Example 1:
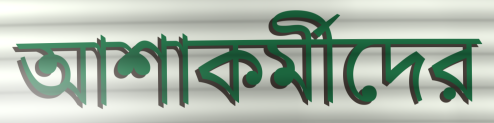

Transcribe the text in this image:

আশাকর্মীদের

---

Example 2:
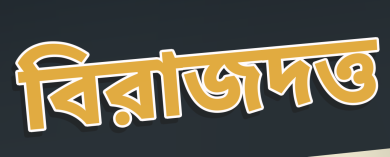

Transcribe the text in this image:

বিরাজদত্ত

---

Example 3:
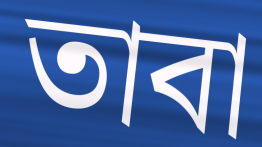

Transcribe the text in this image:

তাবা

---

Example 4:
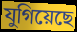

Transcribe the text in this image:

যুগিয়েছে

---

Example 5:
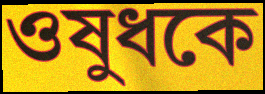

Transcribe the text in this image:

ওষুধকে